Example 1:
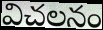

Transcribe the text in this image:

విచలనం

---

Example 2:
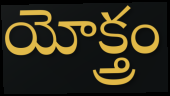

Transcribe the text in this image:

యోక్త్రం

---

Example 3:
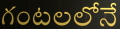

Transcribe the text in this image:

గంటలలోనే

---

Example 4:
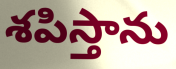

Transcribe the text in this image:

శపిస్తాను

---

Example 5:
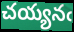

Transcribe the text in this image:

చయ్యనఁ